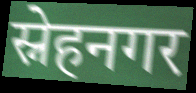
स्नेहनगर